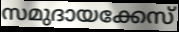
സമുദായക്കേസ്